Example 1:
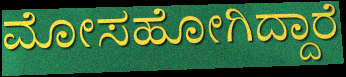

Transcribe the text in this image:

ಮೋಸಹೋಗಿದ್ದಾರೆ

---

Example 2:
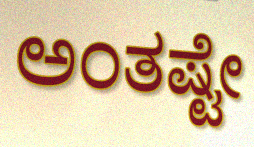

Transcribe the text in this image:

ಅಂತಷ್ಟೇ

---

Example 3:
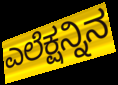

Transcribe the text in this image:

ಎಲೆಕ್ಷನ್ನಿನ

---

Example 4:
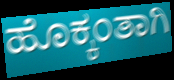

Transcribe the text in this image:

ಹೊಕ್ಕಂತಾಗಿ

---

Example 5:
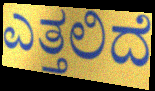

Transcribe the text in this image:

ಎತ್ತಲಿದೆ